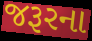
જરૂરના